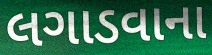
લગાડવાના